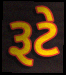
રૂટે